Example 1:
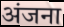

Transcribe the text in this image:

अंजना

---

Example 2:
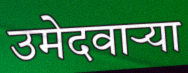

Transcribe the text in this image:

उमेदवार्‍या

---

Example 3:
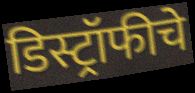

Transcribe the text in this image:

डिस्ट्रॉफीचे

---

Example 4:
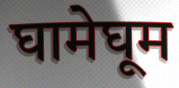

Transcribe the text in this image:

घामेघूम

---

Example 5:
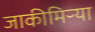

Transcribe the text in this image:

जाकीमिऱ्या